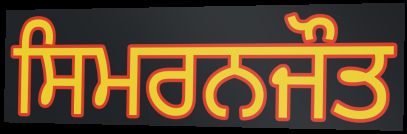
ਸਿਮਰਨਜੌਤ